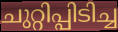
ചുറ്റിപ്പിടിച്ച